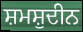
ਸ਼ਮਸ਼ੁਦੀਨ